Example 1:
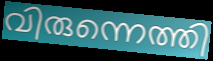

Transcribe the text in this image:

വിരുന്നെത്തി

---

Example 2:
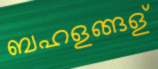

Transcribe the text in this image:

ബഹളങ്ങള്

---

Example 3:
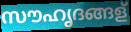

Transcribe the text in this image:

സൗഹൃദങ്ങള്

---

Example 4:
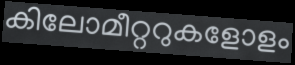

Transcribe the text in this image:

കിലോമീറ്ററുകളോളം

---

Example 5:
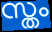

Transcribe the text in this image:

സ്തം